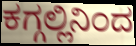
ಕಗ್ಗಲ್ಲಿನಿಂದ